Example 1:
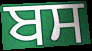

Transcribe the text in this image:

ਬਸ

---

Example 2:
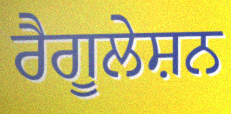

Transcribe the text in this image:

ਰੈਗੂਲੇਸ਼ਨ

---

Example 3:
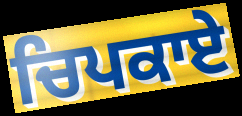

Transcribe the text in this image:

ਚਿਪਕਾਏ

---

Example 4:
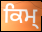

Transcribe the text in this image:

ਕਿਮ੍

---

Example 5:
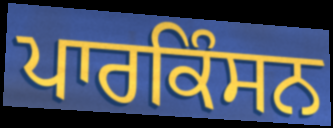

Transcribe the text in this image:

ਪਾਰਕਿੰਸਨ